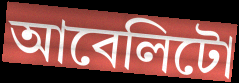
আবেলিটো